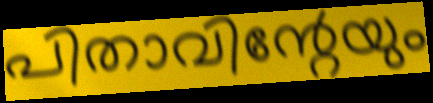
പിതാവിന്റേയും